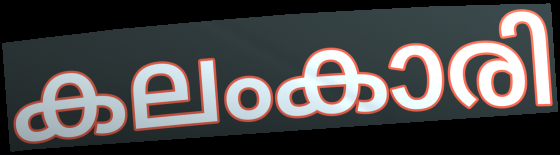
കലംകാരി